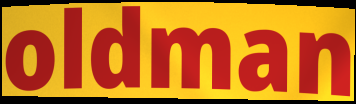
oldman